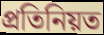
প্রতিনিয়ত